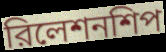
রিলেশনশিপ